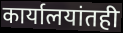
कार्यालयांतही